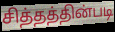
சித்தத்தின்படி